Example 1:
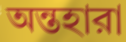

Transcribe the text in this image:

অন্তহারা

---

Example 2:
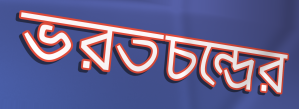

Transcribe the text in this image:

ভরতচন্দ্রের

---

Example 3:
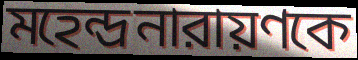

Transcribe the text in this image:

মহেন্দ্রনারায়ণকে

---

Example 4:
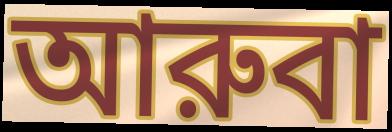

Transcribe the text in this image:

আরুবা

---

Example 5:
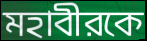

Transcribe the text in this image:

মহাবীরকে